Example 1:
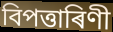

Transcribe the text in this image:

বিপত্তাৰিণী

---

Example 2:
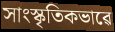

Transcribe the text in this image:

সাংস্কৃতিকভাৱে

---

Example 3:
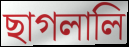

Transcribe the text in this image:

ছাগলালি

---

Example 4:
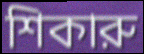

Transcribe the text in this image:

শিকাৰু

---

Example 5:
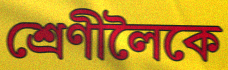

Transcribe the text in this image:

শ্ৰেণীলৈকে